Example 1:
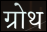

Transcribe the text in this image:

ग्रोथ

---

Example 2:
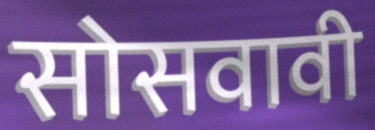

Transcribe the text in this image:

सोसवावी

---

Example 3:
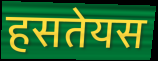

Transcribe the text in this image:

हसतेयस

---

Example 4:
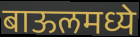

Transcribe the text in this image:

बाऊलमध्ये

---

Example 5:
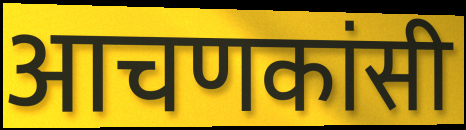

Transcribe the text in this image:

आचणकांसी